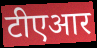
टीएआर